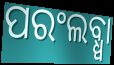
ପରଂଲବ୍ଧ୍ଵା